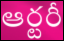
ఆర్టరీ